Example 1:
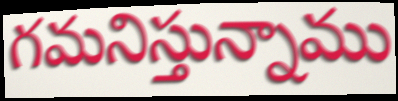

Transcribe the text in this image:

గమనిస్తున్నాము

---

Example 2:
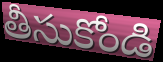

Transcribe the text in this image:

తీసుకోండి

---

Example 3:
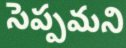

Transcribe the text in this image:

సెప్పమని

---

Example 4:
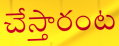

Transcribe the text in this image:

చేస్తారంట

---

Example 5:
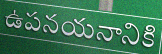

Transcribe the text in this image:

ఉపనయనానికి